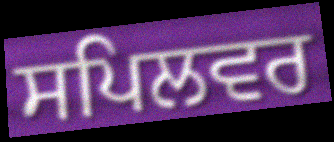
ਸਪਿਲਵਰ